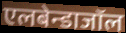
एलबेन्डाजॉल